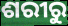
ଶରୀରୁ